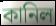
কানিল